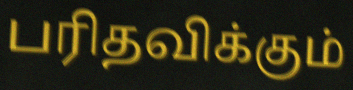
பரிதவிக்கும்